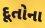
દૂતોના